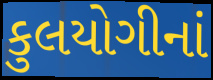
કુલયોગીનાં